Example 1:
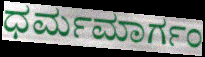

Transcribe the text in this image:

ಧರ್ಮಮಾರ್ಗಂ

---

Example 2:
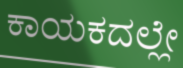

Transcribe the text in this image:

ಕಾಯಕದಲ್ಲೇ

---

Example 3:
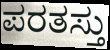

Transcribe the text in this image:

ಪರತಸ್ತು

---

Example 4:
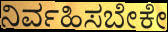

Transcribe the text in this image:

ನಿರ್ವಹಿಸಬೇಕೇ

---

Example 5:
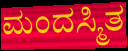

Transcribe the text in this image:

ಮಂದಸ್ಮಿತ